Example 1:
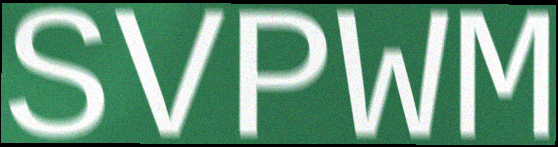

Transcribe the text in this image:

SVPWM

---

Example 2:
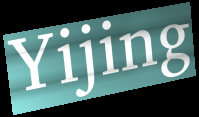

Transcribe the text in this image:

Yijing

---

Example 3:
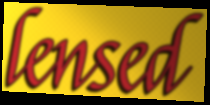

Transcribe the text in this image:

lensed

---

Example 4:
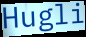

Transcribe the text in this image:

Hugli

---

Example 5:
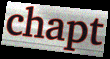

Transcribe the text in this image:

chapt